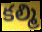
కల్మి